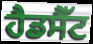
ਹੈਡਸੈੱਟ